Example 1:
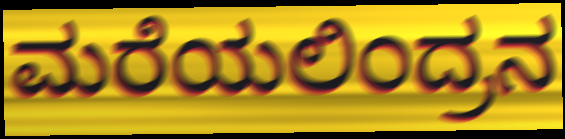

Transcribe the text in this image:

ಮರೆಯಲಿಂದ್ರನ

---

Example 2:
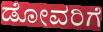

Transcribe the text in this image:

ಡೋವರಿಗೆ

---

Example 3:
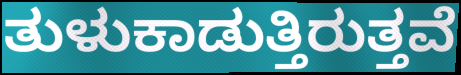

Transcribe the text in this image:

ತುಳುಕಾಡುತ್ತಿರುತ್ತವೆ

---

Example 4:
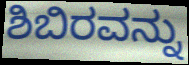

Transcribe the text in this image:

ಶಿಬಿರವನ್ನು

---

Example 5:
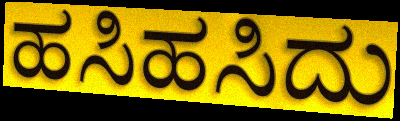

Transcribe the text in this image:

ಹಸಿಹಸಿದು